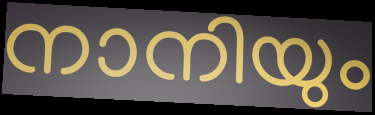
നാനിയും